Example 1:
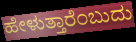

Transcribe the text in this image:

ಹೇಳುತ್ತಾರೆಂಬುದು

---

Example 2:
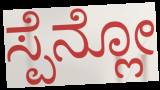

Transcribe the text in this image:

ಸ್ಪೆನ್ಲೋ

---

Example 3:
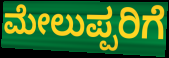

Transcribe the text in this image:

ಮೇಲುಪ್ಪರಿಗೆ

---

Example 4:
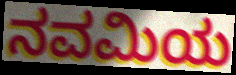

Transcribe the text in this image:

ನವಮಿಯ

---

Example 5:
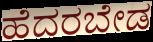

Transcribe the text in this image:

ಹೆದರಬೇಡ